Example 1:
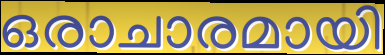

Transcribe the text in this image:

ഒരാചാരമായി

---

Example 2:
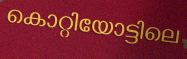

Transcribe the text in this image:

കൊറ്റിയോട്ടിലെ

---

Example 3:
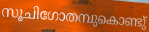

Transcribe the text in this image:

സൂചിഗോതമ്പുകൊണ്ടു്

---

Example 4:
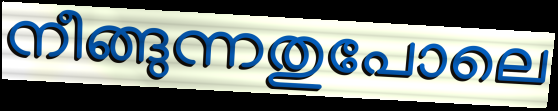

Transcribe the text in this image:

നീങ്ങുന്നതുപോലെ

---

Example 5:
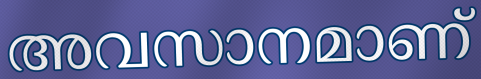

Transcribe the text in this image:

അവസാനമാണ്